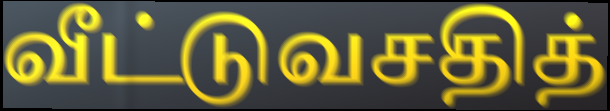
வீட்டுவசதித்